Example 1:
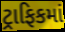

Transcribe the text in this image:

ટ્રાફિકમાં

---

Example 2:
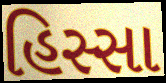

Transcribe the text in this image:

હિસ્સા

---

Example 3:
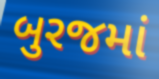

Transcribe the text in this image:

બુરજમાં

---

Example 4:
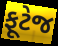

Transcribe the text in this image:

ફૂટેજ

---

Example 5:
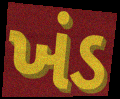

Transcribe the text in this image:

ખંડ